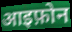
आइफ़ोन